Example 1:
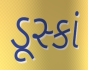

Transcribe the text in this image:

ડૂસ્કાં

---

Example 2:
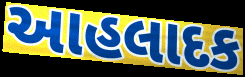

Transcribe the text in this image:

આહલાદક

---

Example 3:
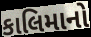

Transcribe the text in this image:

કાલિમાનો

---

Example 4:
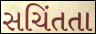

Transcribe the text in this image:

સચિંતતા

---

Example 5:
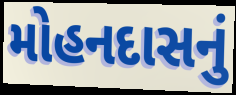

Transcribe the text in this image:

મોહનદાસનું